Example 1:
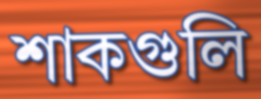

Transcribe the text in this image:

শাকগুলি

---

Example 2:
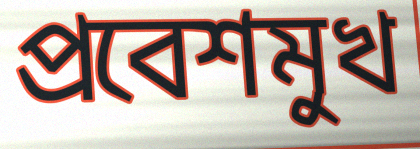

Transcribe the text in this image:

প্রবেশমুখ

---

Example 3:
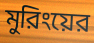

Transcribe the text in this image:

মুরিংয়ের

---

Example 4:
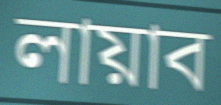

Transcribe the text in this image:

লায়াব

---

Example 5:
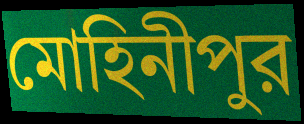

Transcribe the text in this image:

মোহিনীপুর